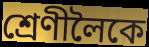
শ্ৰেণীলৈকে